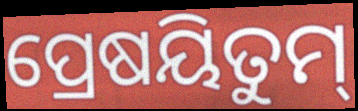
ପ୍ରେଷୟିତୁମ୍